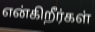
என்கிறீர்கள்